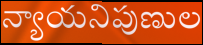
న్యాయనిపుణుల